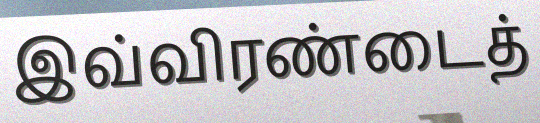
இவ்விரண்டைத்